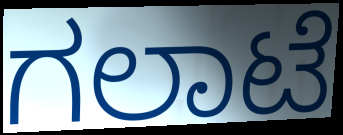
ಗಲಾಟೆ